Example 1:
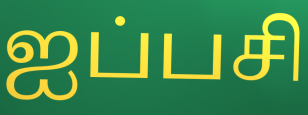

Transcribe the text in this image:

ஐப்பசி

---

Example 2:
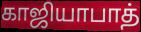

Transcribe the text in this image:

காஜியாபாத்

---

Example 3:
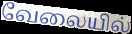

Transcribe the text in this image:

வேலையில்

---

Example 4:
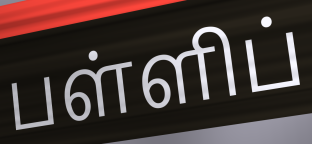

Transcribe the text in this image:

பள்ளிப்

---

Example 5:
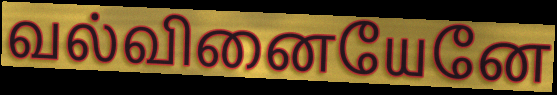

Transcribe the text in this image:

வல்வினையேனே